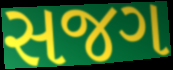
સજગ